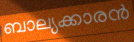
ബാല്യക്കാരൻ